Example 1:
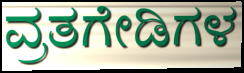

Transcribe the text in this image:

ವ್ರತಗೇಡಿಗಳ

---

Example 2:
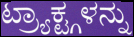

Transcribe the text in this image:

ಟ್ರ್ಯಾಕ್ಟ್ಗಳನ್ನು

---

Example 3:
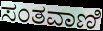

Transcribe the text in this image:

ಸಂತವಾಣಿ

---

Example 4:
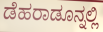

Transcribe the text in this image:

ಡೆಹರಾಡೂನ್ನಲ್ಲಿ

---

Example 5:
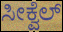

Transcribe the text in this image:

ಸೀಕ್ವೆಲ್